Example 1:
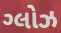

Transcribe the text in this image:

ગ્લોઝ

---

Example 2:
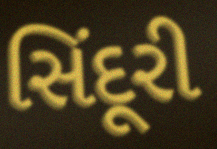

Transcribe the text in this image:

સિંદૂરી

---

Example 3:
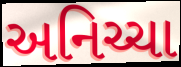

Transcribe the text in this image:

અનિચ્ચા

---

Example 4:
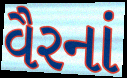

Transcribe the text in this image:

વૈરનાં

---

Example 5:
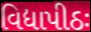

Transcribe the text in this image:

વિદ્યાપીઠઃ